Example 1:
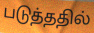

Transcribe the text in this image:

படுத்ததில்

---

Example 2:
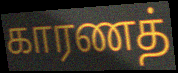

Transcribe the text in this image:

காரணத்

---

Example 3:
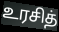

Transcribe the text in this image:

உரசித்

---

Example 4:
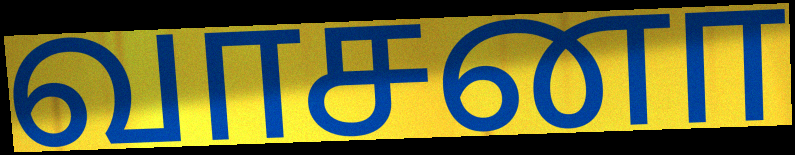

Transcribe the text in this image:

வாசனா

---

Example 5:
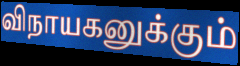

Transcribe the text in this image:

விநாயகனுக்கும்